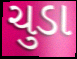
ચુડા